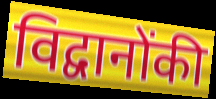
विद्वानोंकी